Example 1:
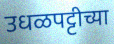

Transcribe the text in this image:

उधळपट्टीच्या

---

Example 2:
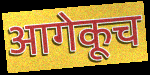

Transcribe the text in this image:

आगेकूच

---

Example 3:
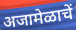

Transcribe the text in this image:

अजामेळाचें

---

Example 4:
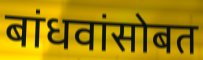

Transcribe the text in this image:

बांधवांसोबत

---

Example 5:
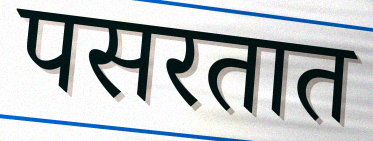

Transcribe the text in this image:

पसरतात